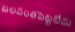
బలవంతపెట్టలేదు